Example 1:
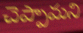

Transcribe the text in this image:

చెప్పామని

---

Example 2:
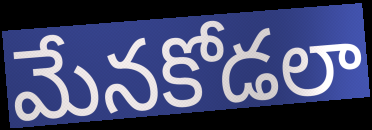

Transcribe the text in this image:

మేనకోడలా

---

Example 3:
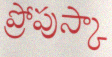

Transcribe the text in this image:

ప్రోపుస్కా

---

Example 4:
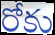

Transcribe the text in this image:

రోకు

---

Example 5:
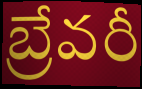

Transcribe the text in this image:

బ్రేవరీ